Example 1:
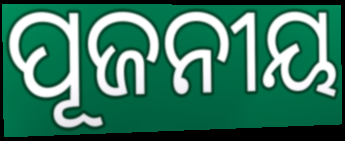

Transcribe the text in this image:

ପୂଜନୀୟ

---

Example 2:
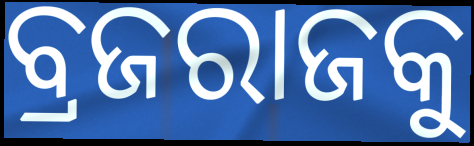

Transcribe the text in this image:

ବ୍ରଜରାଜକୁ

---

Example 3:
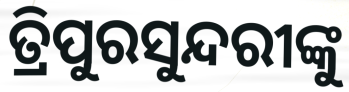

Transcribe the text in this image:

ତ୍ରିପୁରସୁନ୍ଦରୀଙ୍କୁ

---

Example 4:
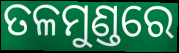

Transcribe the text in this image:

ତଳମୁଣ୍ଡରେ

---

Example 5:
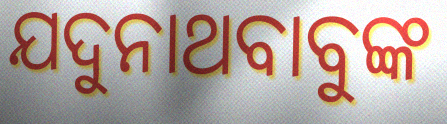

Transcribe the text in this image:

ଯଦୁନାଥବାବୁଙ୍କ